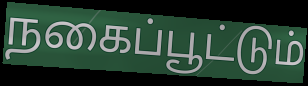
நகைப்பூட்டும்